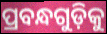
ପ୍ରବନ୍ଧଗୁଡ଼ିକୁ